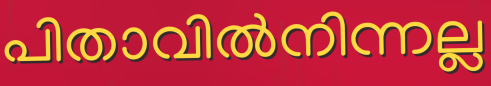
പിതാവിൽനിന്നല്ല